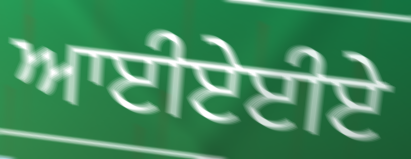
ਆਈਏਈਏ